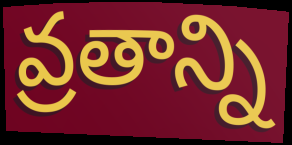
వ్రతాన్ని